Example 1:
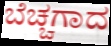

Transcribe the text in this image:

ಬೆಚ್ಚಗಾದ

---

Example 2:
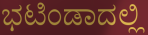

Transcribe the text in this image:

ಭಟಿಂಡಾದಲ್ಲಿ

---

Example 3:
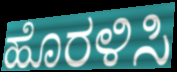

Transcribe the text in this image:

ಹೊರಳಿಸಿ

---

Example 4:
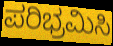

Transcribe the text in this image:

ಪರಿಭ್ರಮಿಸಿ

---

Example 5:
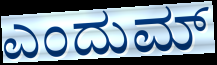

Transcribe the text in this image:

ಎಂದುಮ್